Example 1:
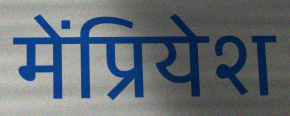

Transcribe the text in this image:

मेंप्रियेश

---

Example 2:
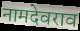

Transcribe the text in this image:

नामदेवराव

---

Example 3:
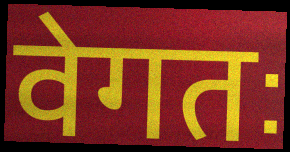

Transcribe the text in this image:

वेगतः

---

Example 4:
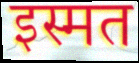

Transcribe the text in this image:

इस्मत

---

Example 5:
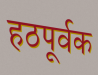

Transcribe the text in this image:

हठपूर्वक